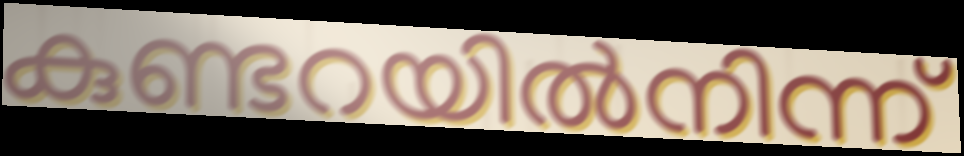
കുണ്ടറയിൽനിന്ന്